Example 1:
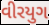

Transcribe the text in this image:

વીરયુગ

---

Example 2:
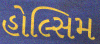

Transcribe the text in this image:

હોલ્સિમ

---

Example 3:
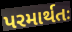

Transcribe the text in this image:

પરમાર્થતઃ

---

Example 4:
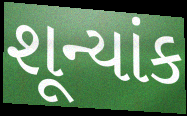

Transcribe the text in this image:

શૂન્યાંક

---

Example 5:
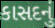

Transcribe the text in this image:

કાસદનું